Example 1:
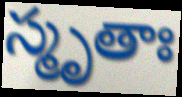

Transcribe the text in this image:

స్మృతాః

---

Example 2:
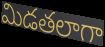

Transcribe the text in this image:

మిడతలాగా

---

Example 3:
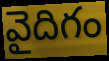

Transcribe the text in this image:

వైదిగం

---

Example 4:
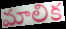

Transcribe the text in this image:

మాలిక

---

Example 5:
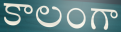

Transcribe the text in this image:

కాలంగా